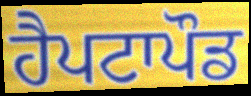
ਹੈਪਟਾਪੌਡ